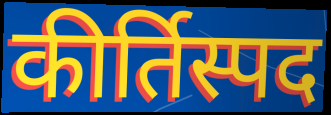
कीर्तिस्पद